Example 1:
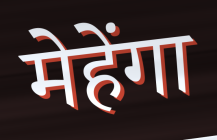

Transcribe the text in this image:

मेहेंगा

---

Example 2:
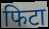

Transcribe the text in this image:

फिटा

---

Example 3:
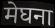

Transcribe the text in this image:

मेघना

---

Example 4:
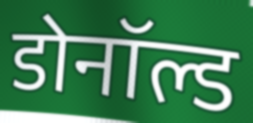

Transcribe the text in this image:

डोनॉल्ड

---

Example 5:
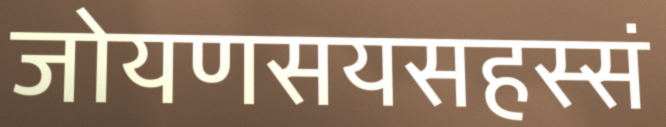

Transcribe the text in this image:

जोयणसयसहस्सं